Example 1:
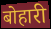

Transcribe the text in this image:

बोहारी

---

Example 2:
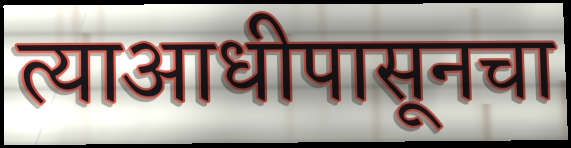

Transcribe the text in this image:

त्याआधीपासूनचा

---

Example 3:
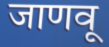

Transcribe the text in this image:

जाणवू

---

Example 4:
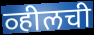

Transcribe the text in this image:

व्हीलची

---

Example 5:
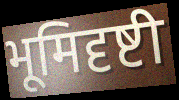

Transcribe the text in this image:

भूमिदृष्टी